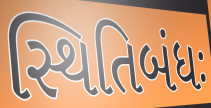
સ્થિતિબંધઃ